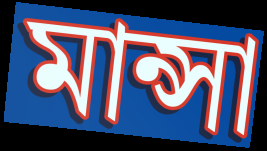
মান্সা